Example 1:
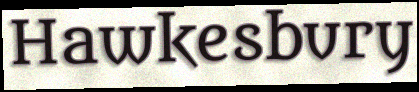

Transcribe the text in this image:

Hawkesbury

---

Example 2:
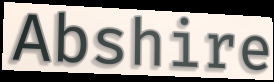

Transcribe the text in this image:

Abshire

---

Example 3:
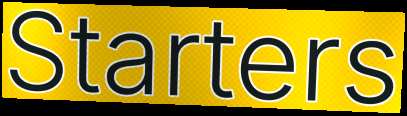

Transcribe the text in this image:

Starters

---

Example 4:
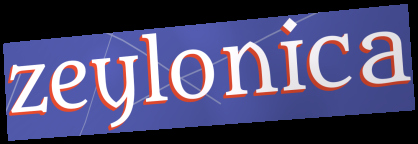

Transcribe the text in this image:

zeylonica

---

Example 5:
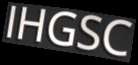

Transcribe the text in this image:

IHGSC